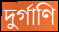
দুর্গাণি